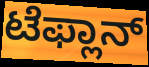
ಟೆಫ್ಲಾನ್